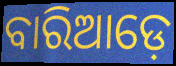
ବାରିଆଡ଼େ